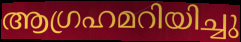
ആഗ്രഹമറിയിച്ചു